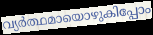
വ്യർത്ഥമായൊഴുകിപ്പോം